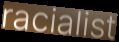
racialist